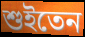
শুইতেন